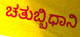
ಚತುಬ್ಬಿಧಾನಿ